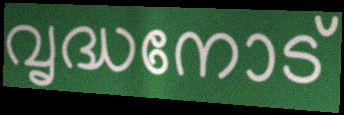
വൃദ്ധനോട്